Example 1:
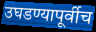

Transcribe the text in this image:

उघडण्यापूर्वीच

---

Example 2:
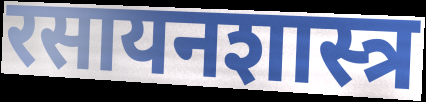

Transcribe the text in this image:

रसायनशास्त्र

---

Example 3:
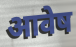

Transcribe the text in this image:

आवेष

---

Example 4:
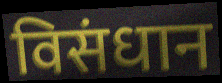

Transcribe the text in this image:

विसंधान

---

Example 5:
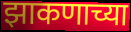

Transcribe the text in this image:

झाकणाच्या